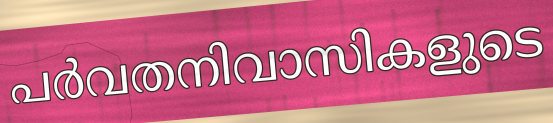
പർവതനിവാസികളുടെ